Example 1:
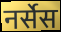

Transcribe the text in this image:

नर्सेस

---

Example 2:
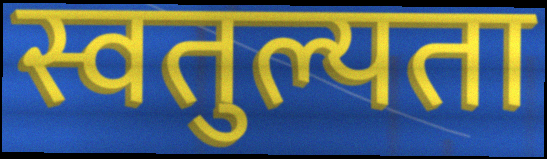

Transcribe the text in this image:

स्वतुल्यता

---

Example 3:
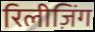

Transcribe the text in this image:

रिलीज़िंग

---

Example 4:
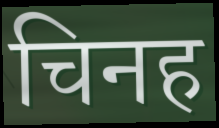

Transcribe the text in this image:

चिनह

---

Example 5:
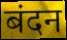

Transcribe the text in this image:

बंदन